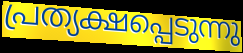
പ്രത്യക്ഷപ്പെടുന്നു